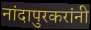
नांदापुरकरांनी